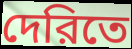
দেরিতে